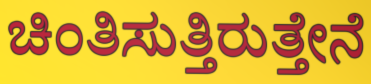
ಚಿಂತಿಸುತ್ತಿರುತ್ತೇನೆ